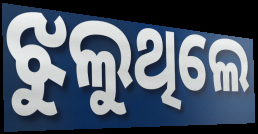
ଝୁଲୁଥିଲେ